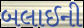
બલાઈની